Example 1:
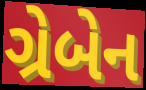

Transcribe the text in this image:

ગ્રેબેન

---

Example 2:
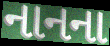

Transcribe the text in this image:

નાનના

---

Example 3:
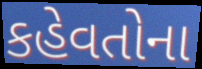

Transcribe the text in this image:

કહેવતોના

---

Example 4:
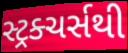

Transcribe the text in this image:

સ્ટ્રક્ચર્સથી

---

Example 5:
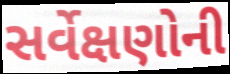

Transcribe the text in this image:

સર્વેક્ષણોની